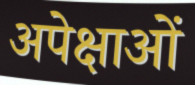
अपेक्षाओं